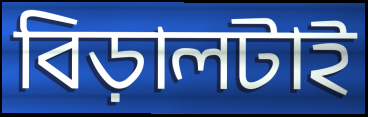
বিড়ালটাই